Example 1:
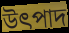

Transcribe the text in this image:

উৎপাদ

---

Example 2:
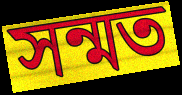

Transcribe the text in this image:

সন্মত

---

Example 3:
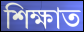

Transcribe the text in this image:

শিক্ষাত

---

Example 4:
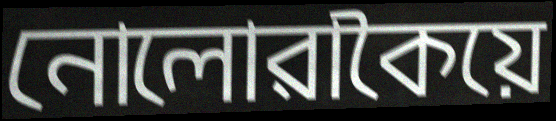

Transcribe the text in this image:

নোলোৱাকৈয়ে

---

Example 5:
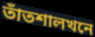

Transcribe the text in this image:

তাঁতশালখনে